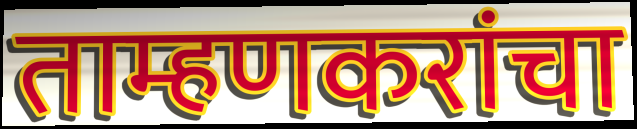
ताम्हणकरांचा